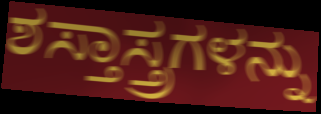
ಶಸ್ತಾಸ್ತ್ರಗಳನ್ನು